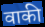
वाकी